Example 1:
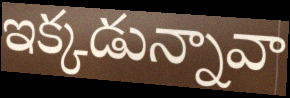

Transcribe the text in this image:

ఇక్కడున్నావా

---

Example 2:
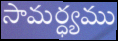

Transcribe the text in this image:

సామర్ధ్యము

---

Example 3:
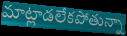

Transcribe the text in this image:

మాట్లాడలేకపోతున్నా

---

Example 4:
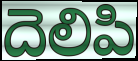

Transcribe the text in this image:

దెలిపి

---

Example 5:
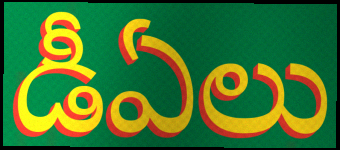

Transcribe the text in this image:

డీఏలు